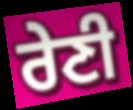
ਰੇਣੀ